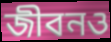
জীবনও